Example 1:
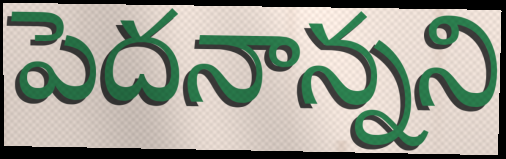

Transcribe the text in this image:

పెదనాన్నని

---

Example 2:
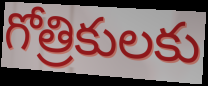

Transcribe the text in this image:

గోత్రికులకు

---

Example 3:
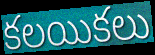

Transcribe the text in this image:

కలయికలు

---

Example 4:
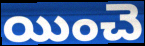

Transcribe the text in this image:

యించె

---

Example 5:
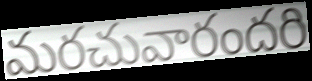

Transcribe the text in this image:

మరచువారందరి